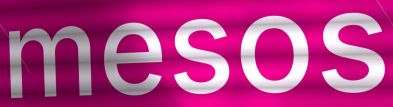
mesos